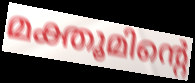
മക്തൂമിന്റെ